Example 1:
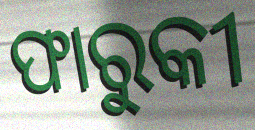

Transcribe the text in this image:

ଫାରୁକୀ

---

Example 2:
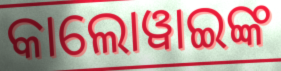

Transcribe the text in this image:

କାଲୋୱାଇଙ୍କ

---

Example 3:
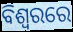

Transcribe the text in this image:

ବିଶ୍ବରରେ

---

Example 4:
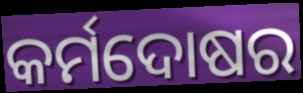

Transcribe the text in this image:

କର୍ମଦୋଷର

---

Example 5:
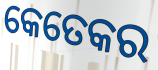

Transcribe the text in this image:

କେତେକର